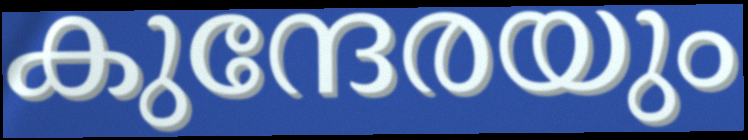
കുന്ദേരയും